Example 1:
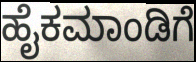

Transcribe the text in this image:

ಹೈಕಮಾಂಡಿಗೆ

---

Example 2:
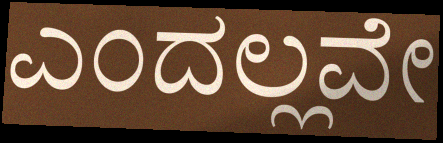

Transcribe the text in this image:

ಎಂದಲ್ಲವೇ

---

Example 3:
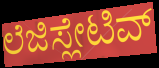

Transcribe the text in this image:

ಲೆಜಿಸ್ಲೇಟಿವ್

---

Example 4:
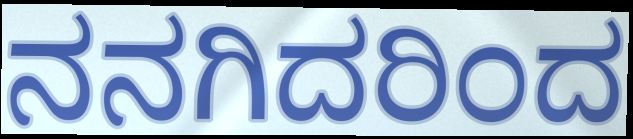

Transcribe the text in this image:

ನನಗಿದರಿಂದ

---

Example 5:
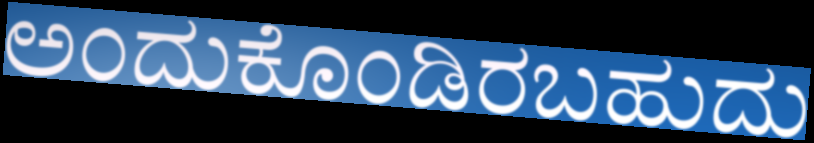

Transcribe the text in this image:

ಅಂದುಕೊಂಡಿರಬಹುದು